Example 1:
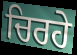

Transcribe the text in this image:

ਚਿਰਹੇ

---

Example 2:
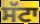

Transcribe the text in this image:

ਸੱਟਾ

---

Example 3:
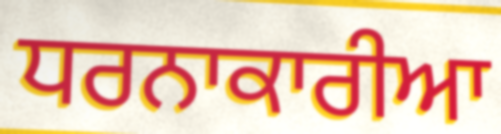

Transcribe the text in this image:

ਧਰਨਾਕਾਰੀਆ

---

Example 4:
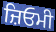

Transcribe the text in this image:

ਜ਼ਿਓਮੀ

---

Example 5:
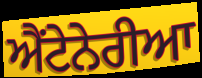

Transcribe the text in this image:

ਐਂਟੇਨੇਰੀਆ